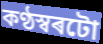
কণ্ঠস্বৰটো